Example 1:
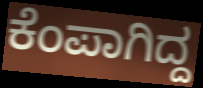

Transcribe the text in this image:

ಕೆಂಪಾಗಿದ್ದ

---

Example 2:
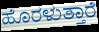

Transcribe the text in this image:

ಹೊರಳುತ್ತಾರೆ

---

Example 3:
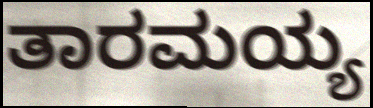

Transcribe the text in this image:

ತಾರಮಯ್ಯ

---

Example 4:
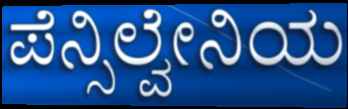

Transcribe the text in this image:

ಪೆನ್ಸಿಲ್ವೇನಿಯ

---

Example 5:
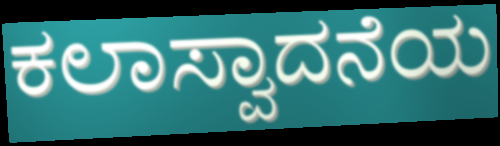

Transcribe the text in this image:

ಕಲಾಸ್ವಾದನೆಯ